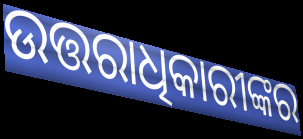
ଉତ୍ତରାଧିକାରୀଙ୍କର